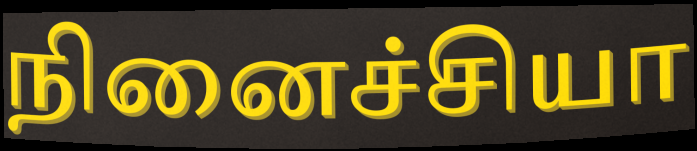
நினைச்சியா